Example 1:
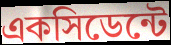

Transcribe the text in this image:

একসিডেন্টে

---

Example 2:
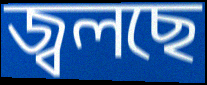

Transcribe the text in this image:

জ্বলছে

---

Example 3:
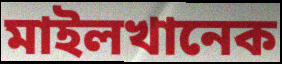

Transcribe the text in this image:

মাইলখানেক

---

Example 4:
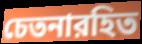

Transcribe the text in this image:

চেতনারহিত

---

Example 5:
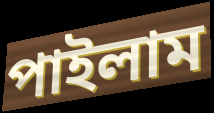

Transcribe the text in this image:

পাইলাম